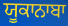
ਯੂਕਾਨਾਬਾ